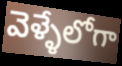
వెళ్ళేలోగా